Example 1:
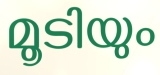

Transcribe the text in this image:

മൂടിയും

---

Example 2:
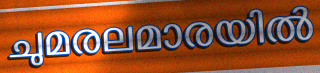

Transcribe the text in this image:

ചുമരലമാരയിൽ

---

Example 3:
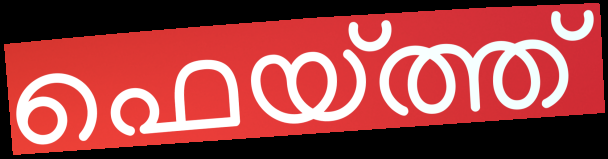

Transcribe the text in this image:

ഫെയ്ത്ത്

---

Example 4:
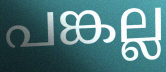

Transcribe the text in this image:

പങ്കല്ല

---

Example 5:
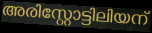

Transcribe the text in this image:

അരിസ്റ്റോട്ടിലിയന്